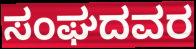
ಸಂಘದವರ